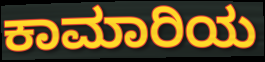
ಕಾಮಾರಿಯ